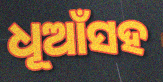
ଧୂଆଁସହ